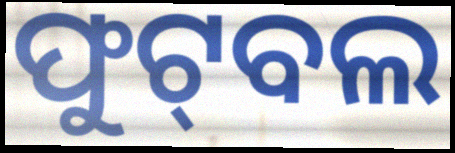
ଫୁଟ୍‌ବଲ